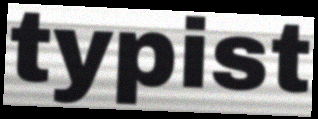
typist